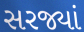
સરજ્યાં